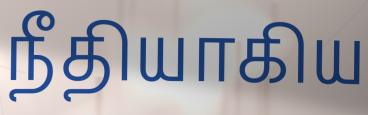
நீதியாகிய